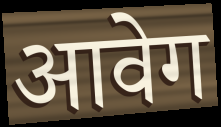
आवेग